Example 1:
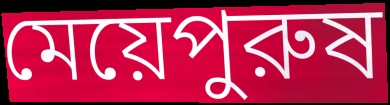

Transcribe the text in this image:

মেয়েপুরুষ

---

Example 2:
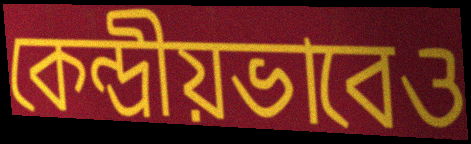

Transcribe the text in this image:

কেন্দ্রীয়ভাবেও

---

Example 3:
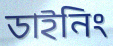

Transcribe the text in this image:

ডাইনিং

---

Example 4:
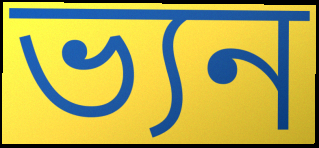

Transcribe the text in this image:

ভ্যন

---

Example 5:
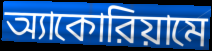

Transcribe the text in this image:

অ্যাকোরিয়ামে